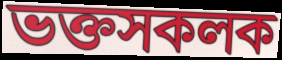
ভক্তসকলক